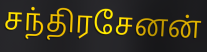
சந்திரசேனன்